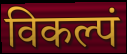
विकल्पं